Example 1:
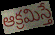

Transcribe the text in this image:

ఆక్రమిస్తే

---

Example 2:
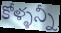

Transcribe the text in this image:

కోళ్ళన్నీ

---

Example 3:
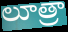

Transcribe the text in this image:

లూత్రా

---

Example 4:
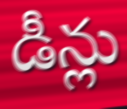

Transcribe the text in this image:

డీన్లు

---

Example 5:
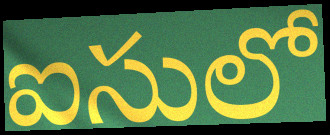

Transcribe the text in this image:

ఐసులో